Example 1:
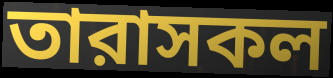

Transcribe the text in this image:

তারাসকল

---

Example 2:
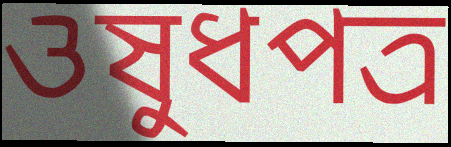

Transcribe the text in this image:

ওষুধপত্র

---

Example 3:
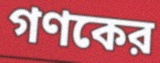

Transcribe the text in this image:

গণকের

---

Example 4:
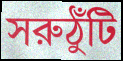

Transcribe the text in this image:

সরুঠুঁটি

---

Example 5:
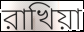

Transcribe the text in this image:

রাখিয়া